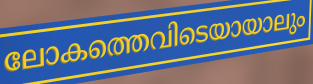
ലോകത്തെവിടെയായാലും